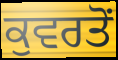
ਕੁਵਰਤੋਂ